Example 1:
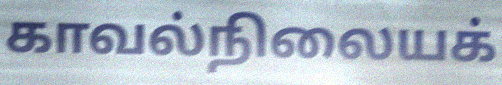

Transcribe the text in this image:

காவல்நிலையக்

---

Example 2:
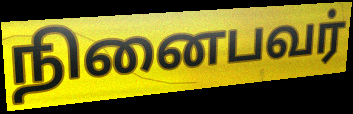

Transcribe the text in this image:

நினைபவர்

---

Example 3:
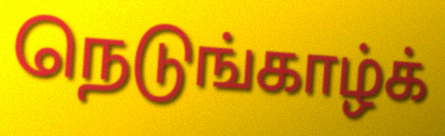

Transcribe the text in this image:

நெடுங்காழ்க்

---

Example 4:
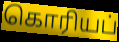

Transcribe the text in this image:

கொரியப்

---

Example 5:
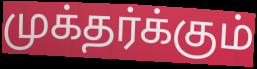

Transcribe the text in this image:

முக்தர்க்கும்